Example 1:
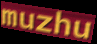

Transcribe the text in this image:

muzhu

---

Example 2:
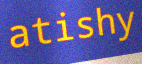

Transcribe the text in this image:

atishy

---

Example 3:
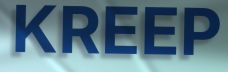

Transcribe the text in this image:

KREEP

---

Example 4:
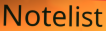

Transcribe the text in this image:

Notelist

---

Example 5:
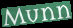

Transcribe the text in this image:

Munn